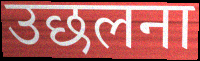
उछलना